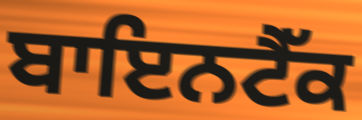
ਬਾਇਨਟੈੱਕ